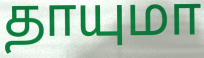
தாயுமா